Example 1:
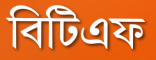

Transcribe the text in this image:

বিটিএফ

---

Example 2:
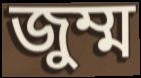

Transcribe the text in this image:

জুম্ম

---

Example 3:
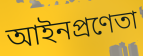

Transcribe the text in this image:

আইনপ্রণেতা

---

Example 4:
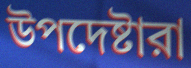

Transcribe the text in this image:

উপদেষ্টারা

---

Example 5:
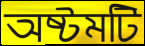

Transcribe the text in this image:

অষ্টমটি